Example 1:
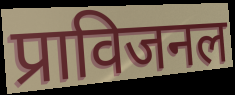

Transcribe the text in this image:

प्राविजनल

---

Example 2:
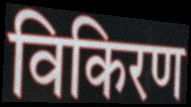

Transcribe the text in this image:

विकिरण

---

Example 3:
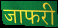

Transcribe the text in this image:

जाफरी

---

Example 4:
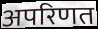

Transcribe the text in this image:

अपरिणत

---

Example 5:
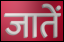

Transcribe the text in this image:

जातें